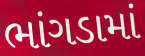
ભાંગડામાં